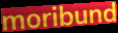
moribund